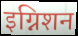
इग्निशन